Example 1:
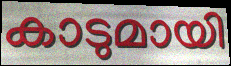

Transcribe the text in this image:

കാടുമായി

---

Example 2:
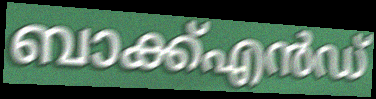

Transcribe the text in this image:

ബാക്ക്എൻഡ്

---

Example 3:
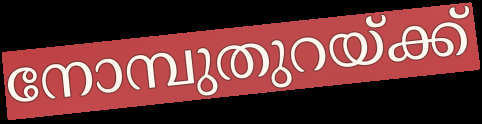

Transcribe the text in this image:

നോമ്പുതുറയ്ക്ക്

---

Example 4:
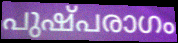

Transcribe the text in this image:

പുഷ്പരാഗം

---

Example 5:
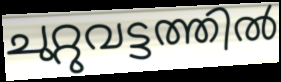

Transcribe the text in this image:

ചുറ്റുവട്ടത്തിൽ